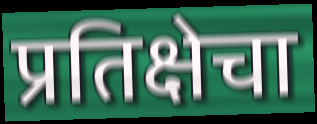
प्रतिक्षेचा